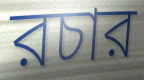
রচার